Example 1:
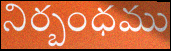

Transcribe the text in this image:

నిర్బంధము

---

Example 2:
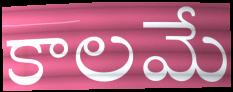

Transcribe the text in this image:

కాలమే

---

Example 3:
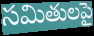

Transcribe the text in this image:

సమితులపై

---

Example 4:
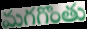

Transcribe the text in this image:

మగగొంతు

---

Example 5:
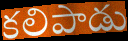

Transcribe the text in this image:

కలిపాడు